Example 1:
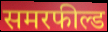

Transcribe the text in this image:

समरफील्ड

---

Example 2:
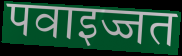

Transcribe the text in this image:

पवाइज्जत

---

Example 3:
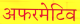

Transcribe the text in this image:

अफरमेटिव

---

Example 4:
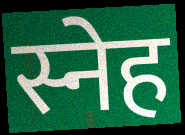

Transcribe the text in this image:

स्नेह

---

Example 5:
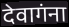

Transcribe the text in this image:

देवागंना